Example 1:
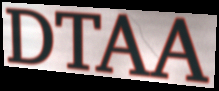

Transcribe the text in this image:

DTAA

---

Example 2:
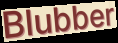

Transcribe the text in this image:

Blubber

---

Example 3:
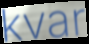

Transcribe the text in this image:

kvar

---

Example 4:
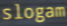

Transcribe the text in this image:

slogam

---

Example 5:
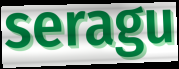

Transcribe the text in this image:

seragu